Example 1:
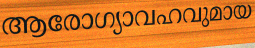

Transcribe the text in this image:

ആരോഗ്യാവഹവുമായ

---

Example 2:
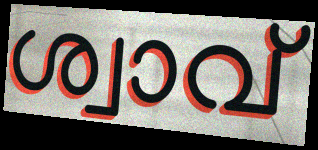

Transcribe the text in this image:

ശ്വാവ്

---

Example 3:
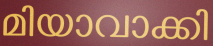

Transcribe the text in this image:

മിയാവാക്കി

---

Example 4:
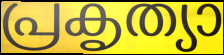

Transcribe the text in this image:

പ്രകൃത്യാ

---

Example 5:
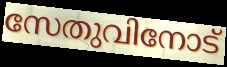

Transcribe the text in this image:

സേതുവിനോട്